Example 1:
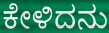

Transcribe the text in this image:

ಕೇಳಿದನು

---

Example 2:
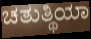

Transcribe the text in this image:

ಚತುತ್ಥಿಯಾ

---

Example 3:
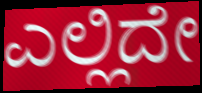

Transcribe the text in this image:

ಎಲ್ಲಿದೇ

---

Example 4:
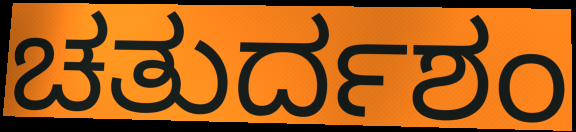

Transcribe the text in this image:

ಚತುರ್ದಶಂ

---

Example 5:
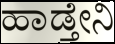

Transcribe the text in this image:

ಹಾಡ್ತೇನಿ